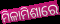
ମିଳାମିଶାରେ